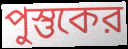
পুস্তুকের